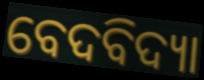
ବେଦବିଦ୍ୟା